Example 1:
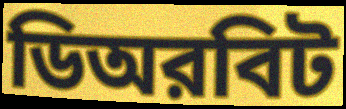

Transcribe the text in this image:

ডিঅরবিট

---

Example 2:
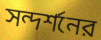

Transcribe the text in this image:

সন্দর্শনের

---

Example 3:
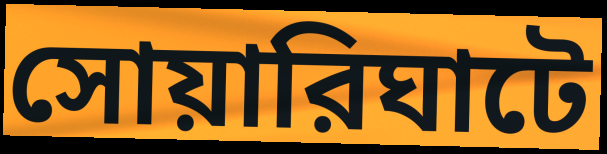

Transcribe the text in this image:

সোয়ারিঘাটে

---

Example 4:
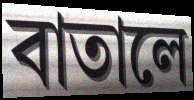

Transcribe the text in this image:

বাতালে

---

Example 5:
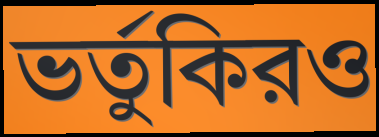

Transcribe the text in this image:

ভর্তুকিরও